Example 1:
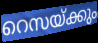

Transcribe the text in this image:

റെസയ്ക്കും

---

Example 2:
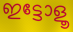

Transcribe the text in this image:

ഇട്ടോളൂ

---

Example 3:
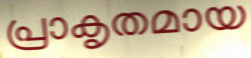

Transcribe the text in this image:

പ്രാകൃതമായ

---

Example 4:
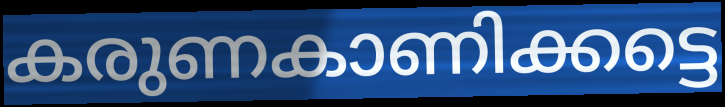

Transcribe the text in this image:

കരുണകാണിക്കട്ടെ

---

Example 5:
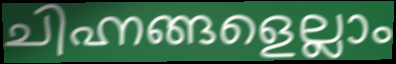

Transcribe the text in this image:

ചിഹ്നങ്ങളെല്ലാം